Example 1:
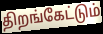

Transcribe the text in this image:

திறங்கேட்டும்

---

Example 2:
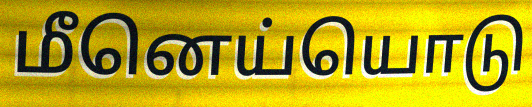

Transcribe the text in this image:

மீனெய்யொடு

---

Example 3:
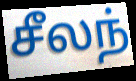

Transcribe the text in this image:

சீலந்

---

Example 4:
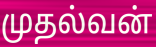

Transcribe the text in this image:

முதல்வன்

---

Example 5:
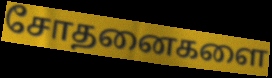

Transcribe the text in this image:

சோதனைகளை